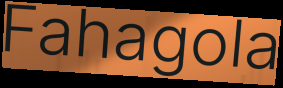
Fahagola